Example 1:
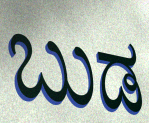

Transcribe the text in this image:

ಬುಡ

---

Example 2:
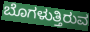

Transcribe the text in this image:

ಬೊಗಳುತ್ತಿರುವ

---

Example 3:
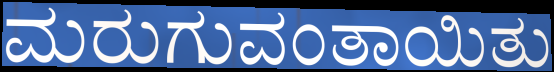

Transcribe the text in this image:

ಮರುಗುವಂತಾಯಿತು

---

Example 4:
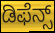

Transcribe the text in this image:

ಡಿಫೆನ್ಸ್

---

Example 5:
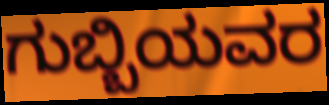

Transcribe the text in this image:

ಗುಬ್ಬಿಯವರ